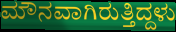
ಮೌನವಾಗಿರುತ್ತಿದ್ದಳು